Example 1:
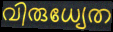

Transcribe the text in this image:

വിരുധ്യേത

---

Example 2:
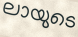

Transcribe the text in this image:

ലായുടെ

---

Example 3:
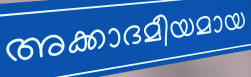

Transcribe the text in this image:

അക്കാദമീയമായ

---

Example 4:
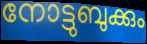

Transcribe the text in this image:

നോട്ടുബുക്കും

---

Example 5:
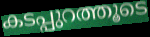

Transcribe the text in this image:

കടപ്പുറത്തൂടെ